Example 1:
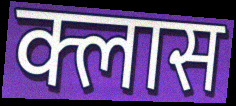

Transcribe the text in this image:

क्लास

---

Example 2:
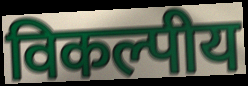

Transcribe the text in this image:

विकल्पीय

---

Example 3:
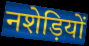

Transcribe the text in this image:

नशेड़ियों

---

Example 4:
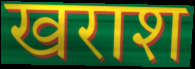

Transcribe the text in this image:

खराश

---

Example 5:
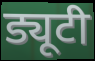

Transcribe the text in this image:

ड्यूटी